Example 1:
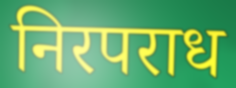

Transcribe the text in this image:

निरपराध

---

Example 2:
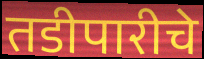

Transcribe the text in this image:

तडीपारीचे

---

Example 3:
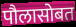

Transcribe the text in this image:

पौलासोबत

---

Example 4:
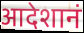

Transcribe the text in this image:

आदेशानं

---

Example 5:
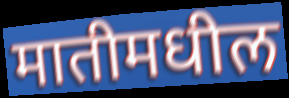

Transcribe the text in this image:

मातीमधील